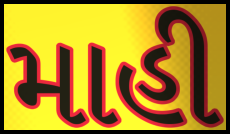
માહી